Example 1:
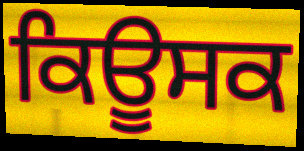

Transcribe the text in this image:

ਕਿਊਸਕ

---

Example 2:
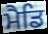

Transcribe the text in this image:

ਮੈਡਿ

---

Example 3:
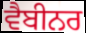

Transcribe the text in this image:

ਵੈਬੀਨਰ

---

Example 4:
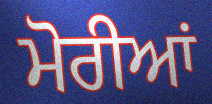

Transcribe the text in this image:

ਮੋਰੀਆਂ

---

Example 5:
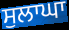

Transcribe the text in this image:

ਸੁਲਾਘਾ